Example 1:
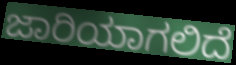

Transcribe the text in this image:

ಜಾರಿಯಾಗಲಿದೆ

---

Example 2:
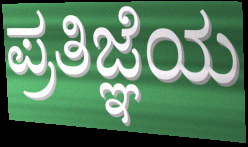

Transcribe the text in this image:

ಪ್ರತಿಜ್ಞೆಯ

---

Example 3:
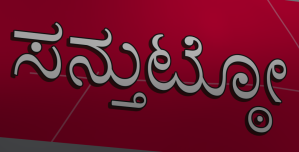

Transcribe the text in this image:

ಸನ್ತುಟ್ಠೋ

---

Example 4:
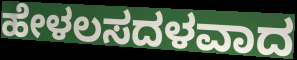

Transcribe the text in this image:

ಹೇಳಲಸದಳವಾದ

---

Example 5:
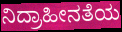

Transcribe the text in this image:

ನಿದ್ರಾಹೀನತೆಯ